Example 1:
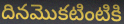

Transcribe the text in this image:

దినమొకటింటికి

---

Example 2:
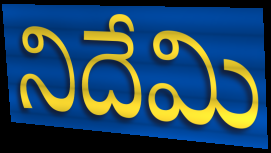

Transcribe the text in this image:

నిదేమి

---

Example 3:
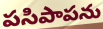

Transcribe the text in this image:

పసిపాపను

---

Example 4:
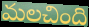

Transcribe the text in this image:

మలచింది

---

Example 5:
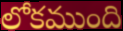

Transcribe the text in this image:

లోకముంది